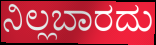
ನಿಲ್ಲಬಾರದು